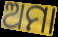
ଅମା